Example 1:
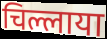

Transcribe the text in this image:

चिल्लाया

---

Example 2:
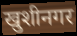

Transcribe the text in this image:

खुशीनगर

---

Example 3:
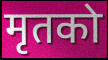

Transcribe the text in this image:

मृतको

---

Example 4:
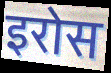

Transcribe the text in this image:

इरोस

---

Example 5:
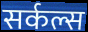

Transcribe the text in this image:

सर्कल्‍स